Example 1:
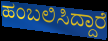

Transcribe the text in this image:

ಹಂಬಲಿಸಿದ್ದಾರೆ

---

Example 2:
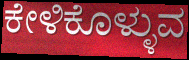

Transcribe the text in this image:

ಕೇಳಿಕೊಳ್ಳುವ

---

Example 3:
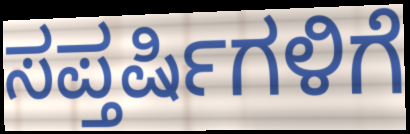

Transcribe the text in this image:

ಸಪ್ತರ್ಷಿಗಳಿಗೆ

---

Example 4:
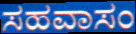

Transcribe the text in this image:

ಸಹವಾಸಂ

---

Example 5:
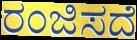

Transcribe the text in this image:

ರಂಜಿಸದೆ